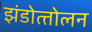
झंडोत्‍तोलन